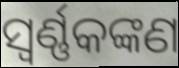
ସ୍ୱର୍ଣ୍ଣକଙ୍କଣ